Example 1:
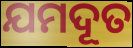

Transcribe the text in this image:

ଯମଦୂତ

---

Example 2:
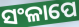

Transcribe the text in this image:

ସଂଳାପେ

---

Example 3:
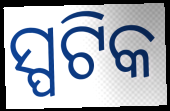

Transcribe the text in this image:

ସ୍ପଟିକ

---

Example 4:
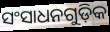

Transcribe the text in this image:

ସଂସାଧନଗୁଡ଼ିକ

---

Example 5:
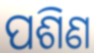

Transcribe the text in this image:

ପଶିଣ